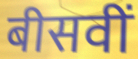
बीसवीं